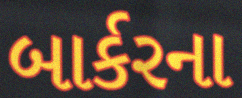
બાર્કરના